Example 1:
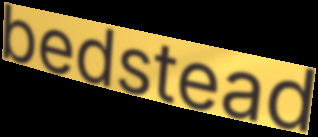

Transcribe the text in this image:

bedstead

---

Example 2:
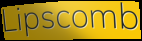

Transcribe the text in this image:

Lipscomb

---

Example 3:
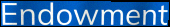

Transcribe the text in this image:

Endowment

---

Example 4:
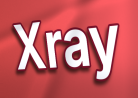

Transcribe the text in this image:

Xray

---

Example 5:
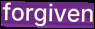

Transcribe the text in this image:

forgiven